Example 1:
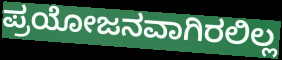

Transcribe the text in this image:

ಪ್ರಯೋಜನವಾಗಿರಲಿಲ್ಲ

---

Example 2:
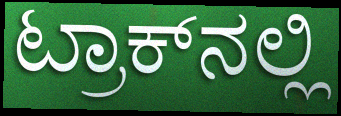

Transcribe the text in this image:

ಟ್ರಾಕ್‌ನಲ್ಲಿ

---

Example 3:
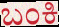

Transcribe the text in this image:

ಬಂಕಿ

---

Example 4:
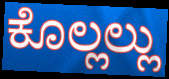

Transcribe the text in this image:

ಕೊಲ್ಲಲ್ಲು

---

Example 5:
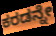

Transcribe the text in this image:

ಕರಡನ್ನೇ